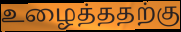
உழைத்ததற்கு